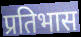
प्रतिभास